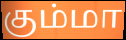
கும்மா